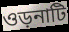
ওড়নাটি